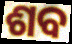
ଶବ